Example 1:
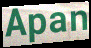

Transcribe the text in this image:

Apan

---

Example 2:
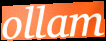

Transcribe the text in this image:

ollam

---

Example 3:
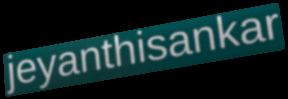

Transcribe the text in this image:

jeyanthisankar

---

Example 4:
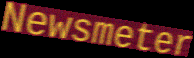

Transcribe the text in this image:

Newsmeter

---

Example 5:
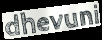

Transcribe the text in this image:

dhevuni